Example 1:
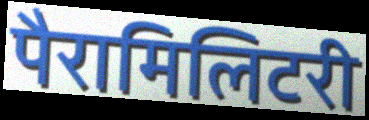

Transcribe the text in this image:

पैरामिलिटरी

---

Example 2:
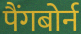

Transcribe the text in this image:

पैंगबोर्न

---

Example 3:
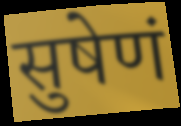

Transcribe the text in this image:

सुषेणं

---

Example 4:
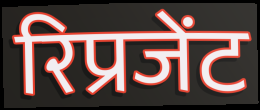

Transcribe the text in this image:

रिप्रजेंट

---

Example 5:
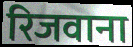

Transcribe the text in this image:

रिजवाना